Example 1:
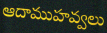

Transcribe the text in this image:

ఆదాముహవ్వలు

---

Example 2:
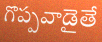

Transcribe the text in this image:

గొప్పవాడైతే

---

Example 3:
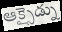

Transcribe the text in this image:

ఆక్సైడ్ను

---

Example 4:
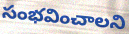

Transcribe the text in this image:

సంభవించాలని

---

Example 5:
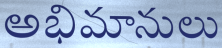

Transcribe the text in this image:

అభిమానులు